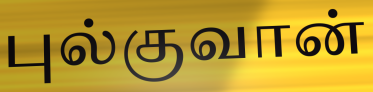
புல்குவான்